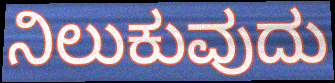
ನಿಲುಕುವುದು